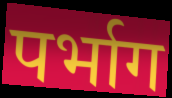
पर्भाग